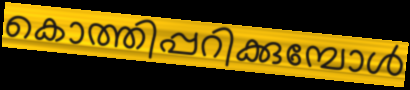
കൊത്തിപ്പറിക്കുമ്പോൾ